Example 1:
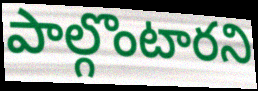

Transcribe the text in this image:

పాల్గొంటారని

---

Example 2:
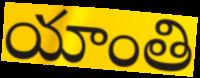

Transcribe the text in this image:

యాంతి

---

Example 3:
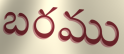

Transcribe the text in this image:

బరము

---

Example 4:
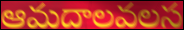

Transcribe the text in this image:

ఆమదాలవలస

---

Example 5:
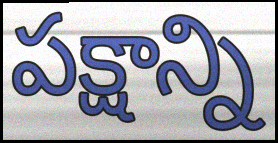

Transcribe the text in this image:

పక్షాన్ని